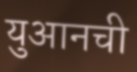
युआनची